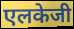
एलकेजी